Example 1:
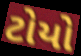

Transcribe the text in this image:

ટોયો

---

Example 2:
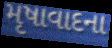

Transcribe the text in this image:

મૃષાવાદના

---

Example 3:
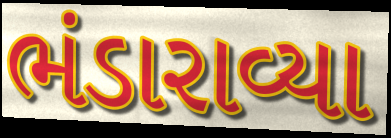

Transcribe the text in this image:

ભંડારાવ્યા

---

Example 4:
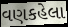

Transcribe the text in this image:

વણકહેલા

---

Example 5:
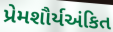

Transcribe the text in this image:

પ્રેમશૌર્યઅંકિત